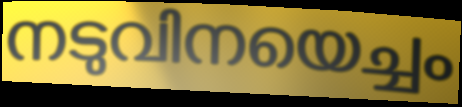
നടുവിനയെച്ചം